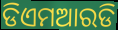
ଡିଏମଆରଡି